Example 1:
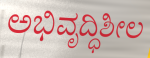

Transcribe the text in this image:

ಅಭಿವೃದ್ಧಿಶೀಲ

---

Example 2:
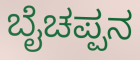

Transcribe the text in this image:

ಬೈಚಪ್ಪನ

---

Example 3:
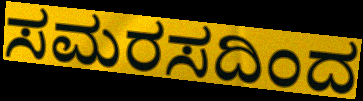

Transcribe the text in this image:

ಸಮರಸದಿಂದ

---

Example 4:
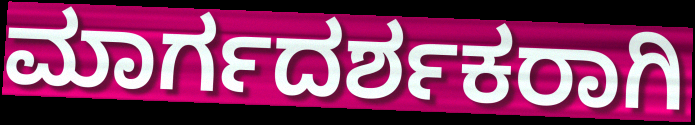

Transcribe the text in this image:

ಮಾರ್ಗದರ್ಶಕರಾಗಿ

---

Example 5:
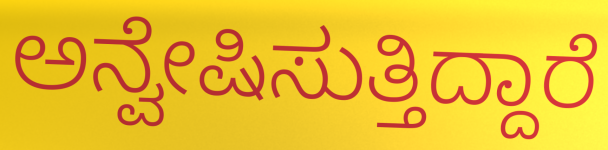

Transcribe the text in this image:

ಅನ್ವೇಷಿಸುತ್ತಿದ್ದಾರೆ